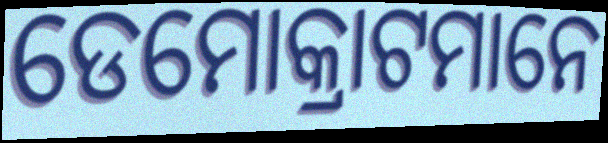
ଡେମୋକ୍ରାଟମାନେ